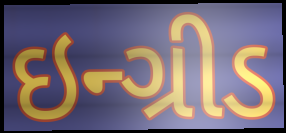
ઇન્ગ્રીડ